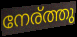
നേര്ത്തു